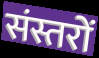
संस्तरों